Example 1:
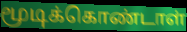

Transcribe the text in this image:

மூடிக்கொண்டாள்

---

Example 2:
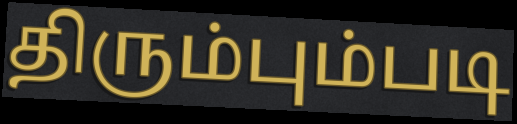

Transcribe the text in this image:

திரும்பும்படி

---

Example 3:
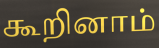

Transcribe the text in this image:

கூறினாம்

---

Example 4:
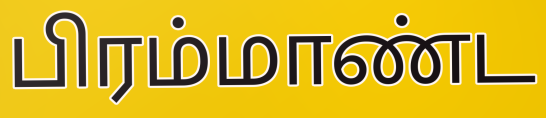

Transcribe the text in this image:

பிரம்மாண்ட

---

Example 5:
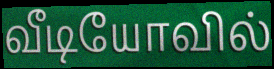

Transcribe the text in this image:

வீடியோவில்